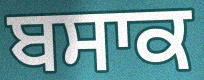
ਬਸਾਕ